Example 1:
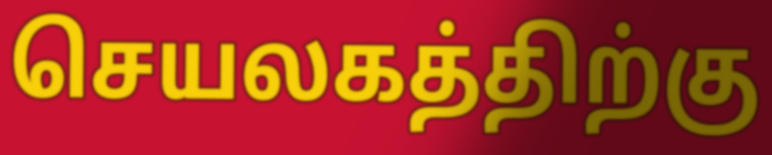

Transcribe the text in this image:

செயலகத்திற்கு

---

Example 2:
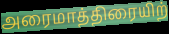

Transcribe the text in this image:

அரைமாத்திரையிற்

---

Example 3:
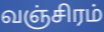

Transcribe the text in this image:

வஞ்சிரம்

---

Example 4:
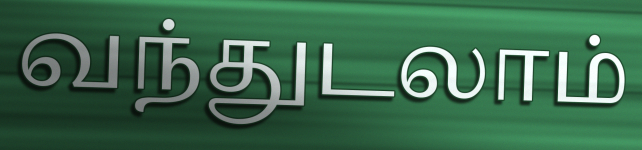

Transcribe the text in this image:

வந்துடலாம்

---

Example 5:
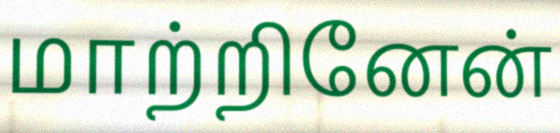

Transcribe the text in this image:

மாற்றினேன்